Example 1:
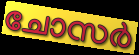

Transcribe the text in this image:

ചോസർ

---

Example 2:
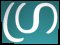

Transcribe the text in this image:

ഗ്ര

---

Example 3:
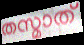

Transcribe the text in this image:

തസ്മാത്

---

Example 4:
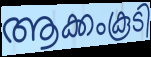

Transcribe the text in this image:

ആക്കംകൂടി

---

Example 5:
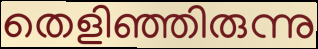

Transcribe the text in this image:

തെളിഞ്ഞിരുന്നു